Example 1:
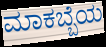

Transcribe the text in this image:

ಮಾಕಬ್ಬೆಯ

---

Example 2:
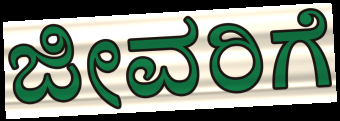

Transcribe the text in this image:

ಜೀವರಿಗೆ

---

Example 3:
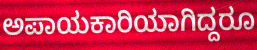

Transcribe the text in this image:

ಅಪಾಯಕಾರಿಯಾಗಿದ್ದರೂ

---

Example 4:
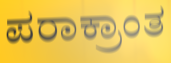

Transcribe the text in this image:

ಪರಾಕ್ರಾಂತ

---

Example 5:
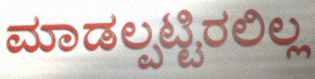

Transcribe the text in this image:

ಮಾಡಲ್ಪಟ್ಟಿರಲಿಲ್ಲ